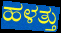
ಹಳತ್ತು